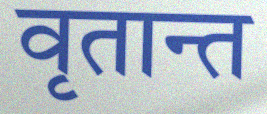
वृतान्त